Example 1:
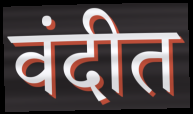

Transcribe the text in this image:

वंदीत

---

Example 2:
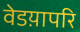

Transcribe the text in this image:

वेडय़ापरि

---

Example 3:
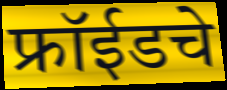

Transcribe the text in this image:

फ्रॉईडचे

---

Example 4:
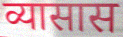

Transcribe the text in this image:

व्यासास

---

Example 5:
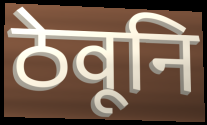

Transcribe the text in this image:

ठेवूनि